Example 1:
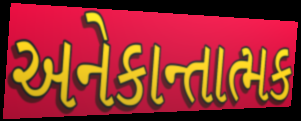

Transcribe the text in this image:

અનેકાન્તાત્મક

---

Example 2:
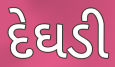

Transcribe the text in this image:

દેઘડી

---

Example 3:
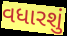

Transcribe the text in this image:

વધારશું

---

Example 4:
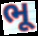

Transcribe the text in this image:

ભૂ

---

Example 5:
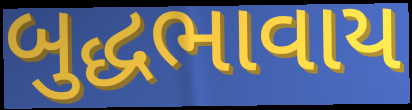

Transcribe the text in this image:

બુદ્ધભાવાય